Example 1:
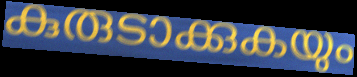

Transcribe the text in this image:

കുരുടാക്കുകയും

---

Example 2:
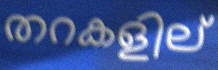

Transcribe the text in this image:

തറകളില്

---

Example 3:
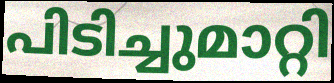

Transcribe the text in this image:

പിടിച്ചുമാറ്റി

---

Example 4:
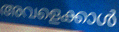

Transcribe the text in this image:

അവളെക്കാൾ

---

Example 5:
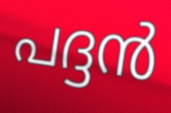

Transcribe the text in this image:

പദ്ദൻ